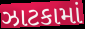
ઝાટકામાં